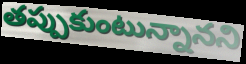
తప్పుకుంటున్నానని